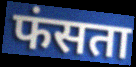
फंसता